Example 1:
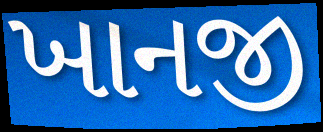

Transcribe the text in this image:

ખાનજી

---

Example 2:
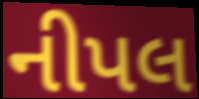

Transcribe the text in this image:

નીપલ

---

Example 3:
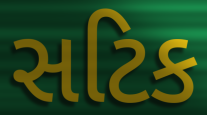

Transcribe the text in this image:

સટિક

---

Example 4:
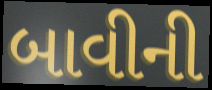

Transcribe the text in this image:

બાવીની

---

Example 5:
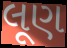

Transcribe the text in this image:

લૂણ